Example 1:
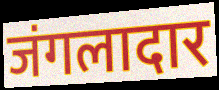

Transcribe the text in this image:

जंगलादार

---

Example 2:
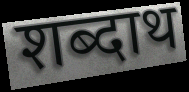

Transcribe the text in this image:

शब्दाथ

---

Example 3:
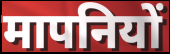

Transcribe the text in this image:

मापनियों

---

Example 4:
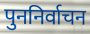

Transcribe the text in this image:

पुननिर्वाचन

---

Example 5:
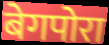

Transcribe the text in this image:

बेगपोरा